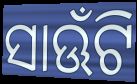
ସାଊଁଟି